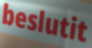
beslutit